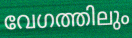
വേഗത്തിലും